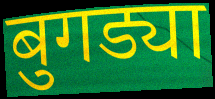
बुगड्या